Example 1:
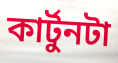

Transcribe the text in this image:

কার্টুনটা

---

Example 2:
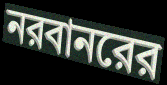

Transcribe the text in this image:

নরবানরের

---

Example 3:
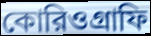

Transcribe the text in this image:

কোরিওগ্রাফি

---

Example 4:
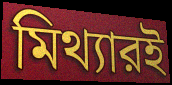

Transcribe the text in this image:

মিথ্যারই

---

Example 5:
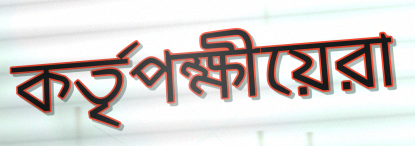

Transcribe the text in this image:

কর্তৃপক্ষীয়েরা